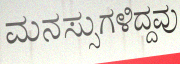
ಮನಸ್ಸುಗಳಿದ್ದವು